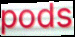
pods